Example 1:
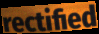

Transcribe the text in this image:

rectified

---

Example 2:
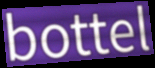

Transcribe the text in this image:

bottel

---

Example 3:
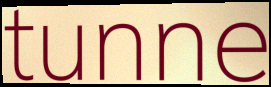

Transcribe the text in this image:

tunne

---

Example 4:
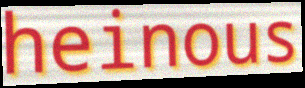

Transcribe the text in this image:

heinous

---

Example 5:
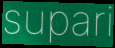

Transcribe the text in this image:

supari